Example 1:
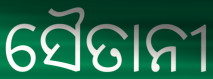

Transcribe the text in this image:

ସୈତାନୀ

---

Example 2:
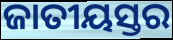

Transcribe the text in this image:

ଜାତୀୟସ୍ତର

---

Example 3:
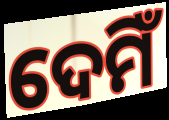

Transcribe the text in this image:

ଦେମିଁ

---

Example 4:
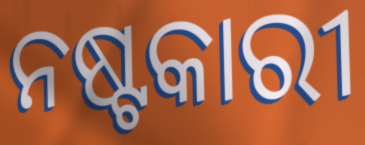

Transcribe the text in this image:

ନଷ୍ଟକାରୀ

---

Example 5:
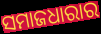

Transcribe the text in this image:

ସମାଜଧାରାର